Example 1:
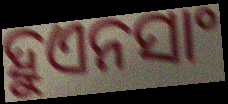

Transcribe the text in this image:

ହୁଏନସାଂ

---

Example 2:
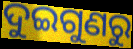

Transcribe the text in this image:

ଦୁଇଗୁଣରୁ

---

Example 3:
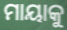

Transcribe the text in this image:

ମାୟାକୁ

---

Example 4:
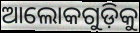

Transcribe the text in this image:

ଆଲୋକଗୁଡ଼ିକୁ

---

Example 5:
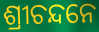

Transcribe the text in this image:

ଶ୍ରୀଚନ୍ଦନେ